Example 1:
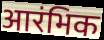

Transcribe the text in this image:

आरंभिक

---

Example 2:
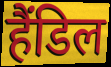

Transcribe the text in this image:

हैंडिल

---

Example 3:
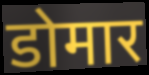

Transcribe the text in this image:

डोमार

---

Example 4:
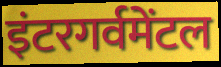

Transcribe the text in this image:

इंटरगर्वमेंटल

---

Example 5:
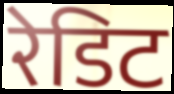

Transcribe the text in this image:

रेडिट